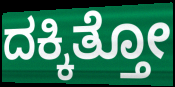
ದಕ್ಕಿತ್ತೋ